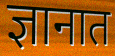
ज्ञानात